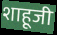
शाहूजी